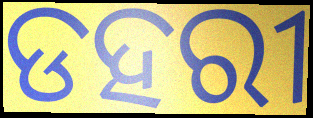
ଡହରୀ